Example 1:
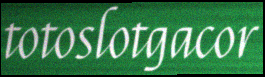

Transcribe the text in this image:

totoslotgacor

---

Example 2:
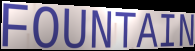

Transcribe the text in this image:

FOUNTAIN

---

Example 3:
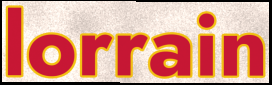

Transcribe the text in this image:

lorrain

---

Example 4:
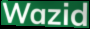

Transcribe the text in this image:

Wazid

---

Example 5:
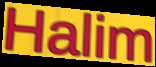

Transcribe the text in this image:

Halim